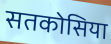
सतकोसिया